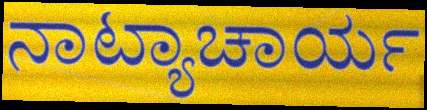
ನಾಟ್ಯಾಚಾರ್ಯ